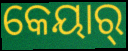
କେୟାର୍